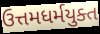
ઉત્તમધર્મયુક્ત